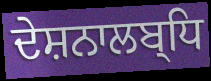
ਦੇਸ਼ਨਾਲਬ੍ਧਿ